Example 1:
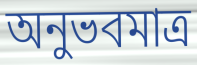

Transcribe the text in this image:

অনুভবমাত্র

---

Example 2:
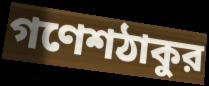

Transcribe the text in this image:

গণেশঠাকুর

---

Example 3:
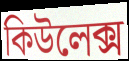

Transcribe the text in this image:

কিউলেক্স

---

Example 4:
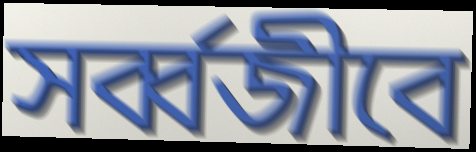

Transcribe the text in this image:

সর্ব্বজীবে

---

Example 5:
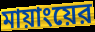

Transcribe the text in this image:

মায়াংয়ের